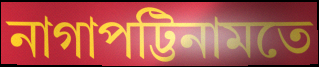
নাগাপট্টিনামতে